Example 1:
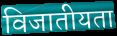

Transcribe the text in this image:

विजातीयता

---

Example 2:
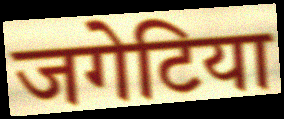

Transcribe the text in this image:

जगेटिया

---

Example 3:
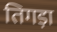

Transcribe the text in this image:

तिगड़ा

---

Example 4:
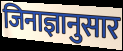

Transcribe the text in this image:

जिनाज्ञानुसार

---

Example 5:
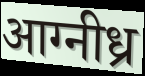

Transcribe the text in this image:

आग्नीध्र